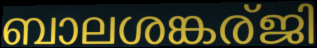
ബാലശങ്കര്ജി